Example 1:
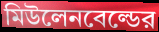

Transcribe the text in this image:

মিউলেনবেল্ডের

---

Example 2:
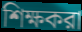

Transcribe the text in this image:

শিক্ষকরা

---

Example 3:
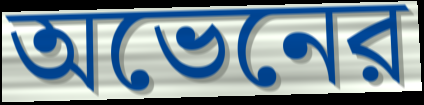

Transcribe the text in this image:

অভেনের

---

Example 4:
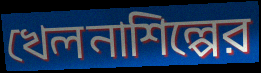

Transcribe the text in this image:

খেলনাশিল্পের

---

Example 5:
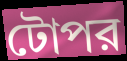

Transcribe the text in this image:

টোপর